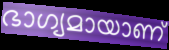
ഭാഗ്യമായാണ്